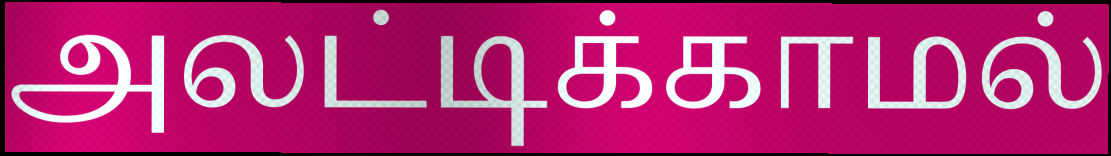
அலட்டிக்காமல்